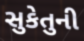
સુકેતુની